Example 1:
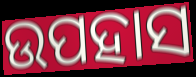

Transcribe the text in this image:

ଉପହାସ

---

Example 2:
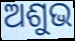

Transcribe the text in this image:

ଅଶୁଭ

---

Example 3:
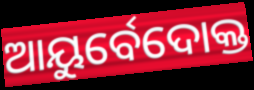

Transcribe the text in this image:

ଆୟୁର୍ବେଦୋକ୍ତ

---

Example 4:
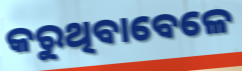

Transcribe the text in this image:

କରୁଥିବାବେଳେ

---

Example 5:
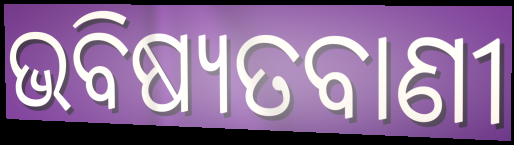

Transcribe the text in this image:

ଭବିଷ୍ୟତବାଣୀ